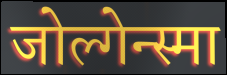
जोल्गेन्स्मा